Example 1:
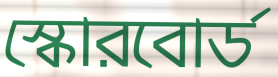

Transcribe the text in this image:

স্কোরবোর্ড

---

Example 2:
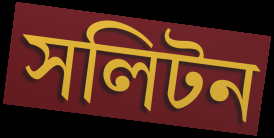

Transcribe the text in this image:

সলিটন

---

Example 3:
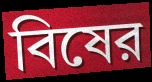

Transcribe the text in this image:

বিষের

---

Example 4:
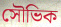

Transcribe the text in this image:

সৌভিক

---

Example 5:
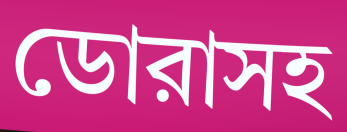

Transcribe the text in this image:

ডোরাসহ